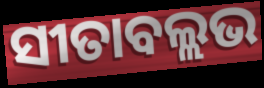
ସୀତାବଲ୍ଲଭ